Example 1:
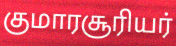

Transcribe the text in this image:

குமாரசூரியர்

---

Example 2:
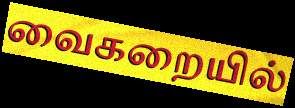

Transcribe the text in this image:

வைகறையில்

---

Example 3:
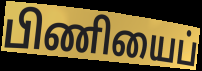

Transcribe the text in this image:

பிணியைப்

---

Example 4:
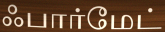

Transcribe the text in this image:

ஃபார்மேட்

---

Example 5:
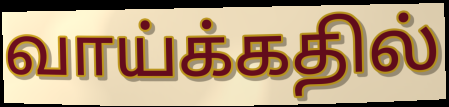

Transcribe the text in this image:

வாய்க்கதில்